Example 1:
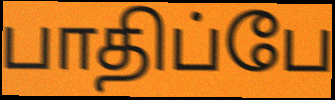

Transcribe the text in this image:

பாதிப்பே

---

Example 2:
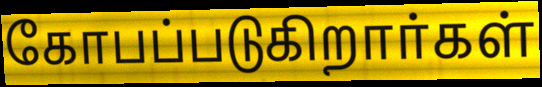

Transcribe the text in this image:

கோபப்படுகிறார்கள்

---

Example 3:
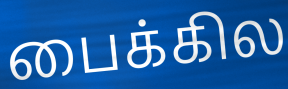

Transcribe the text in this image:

பைக்கில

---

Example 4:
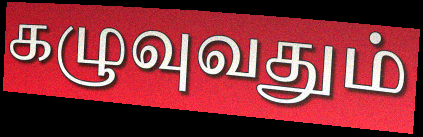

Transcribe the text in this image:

கழுவுவதும்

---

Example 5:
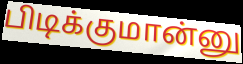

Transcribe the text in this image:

பிடிக்குமான்னு